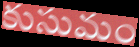
కుసుమం